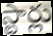
స్టార్లు